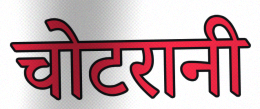
चोटरानी